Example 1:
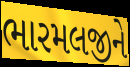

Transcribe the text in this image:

ભારમલજીને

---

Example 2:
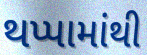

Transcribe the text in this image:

થપ્પામાંથી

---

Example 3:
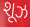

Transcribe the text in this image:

શૂઝ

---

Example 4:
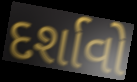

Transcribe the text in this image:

દર્શાવો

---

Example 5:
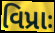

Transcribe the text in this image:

વિપ્રાઃ